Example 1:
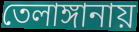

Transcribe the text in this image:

তেলাঙ্গানায়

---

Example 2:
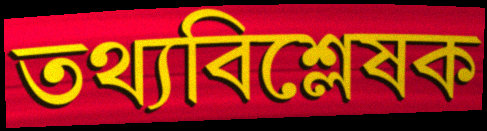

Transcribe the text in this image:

তথ্যবিশ্লেষক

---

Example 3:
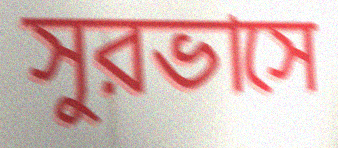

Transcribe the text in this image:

সুরভাসে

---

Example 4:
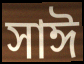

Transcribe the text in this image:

সাঈ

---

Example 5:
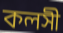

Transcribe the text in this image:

কলসী